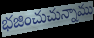
భజించుచున్నాము